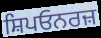
ਸ਼ਿਪਓਨਰਜ਼